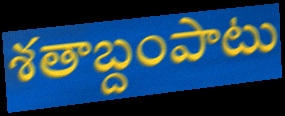
శతాబ్దంపాటు